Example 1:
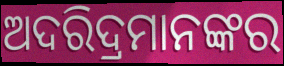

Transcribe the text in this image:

ଅଦରିଦ୍ରମାନଙ୍କର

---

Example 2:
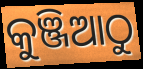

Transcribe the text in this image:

କୁଞ୍ଜିଆଠୁ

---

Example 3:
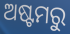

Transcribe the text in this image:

ଅଷ୍ଟମରୁ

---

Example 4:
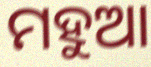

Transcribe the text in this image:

ମହୁଆ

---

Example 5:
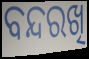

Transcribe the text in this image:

ବନ୍ଦରଖି